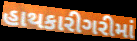
હાથકારીગરીમાં